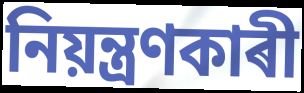
নিয়ন্ত্ৰণকাৰী